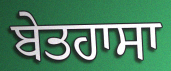
ਬੇਤਹਾਸਾ